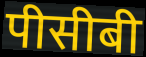
पीसीबी